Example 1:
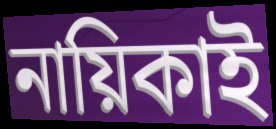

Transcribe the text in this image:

নায়িকাই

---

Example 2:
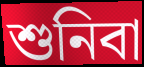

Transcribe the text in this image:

শুনিবা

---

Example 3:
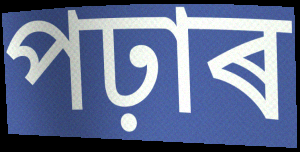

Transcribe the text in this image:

পঢ়াৰ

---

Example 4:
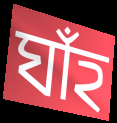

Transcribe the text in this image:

ঘাঁহ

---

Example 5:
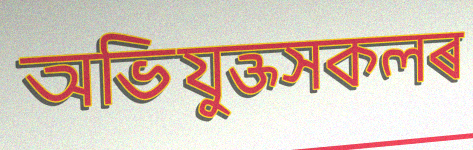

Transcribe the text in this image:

অভিযুক্তসকলৰ